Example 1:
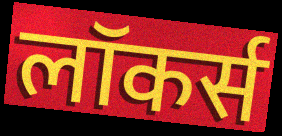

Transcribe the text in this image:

लॉकर्स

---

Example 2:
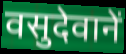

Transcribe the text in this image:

वसुदेवानें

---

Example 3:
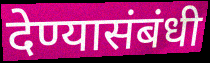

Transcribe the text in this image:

देण्यासंबंधी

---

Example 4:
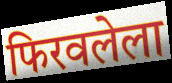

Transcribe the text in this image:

फिरवलेला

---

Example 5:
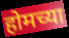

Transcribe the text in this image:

होमच्या